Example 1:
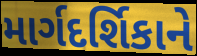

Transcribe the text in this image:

માર્ગદર્શિકાને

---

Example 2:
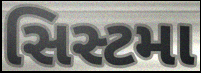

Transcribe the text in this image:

સિસ્ટમા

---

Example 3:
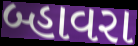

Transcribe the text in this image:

બ્હાવરા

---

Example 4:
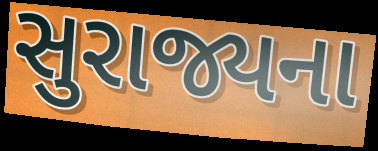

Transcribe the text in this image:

સુરાજ્યના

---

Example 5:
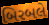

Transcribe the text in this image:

બિરબલે